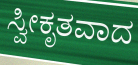
ಸ್ವೀಕೃತವಾದ